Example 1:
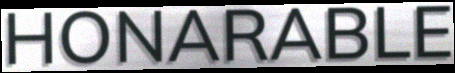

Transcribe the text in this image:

HONARABLE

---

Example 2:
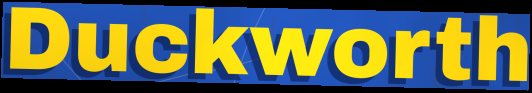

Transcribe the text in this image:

Duckworth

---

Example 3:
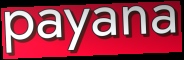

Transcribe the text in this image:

payana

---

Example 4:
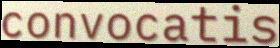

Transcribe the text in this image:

convocatis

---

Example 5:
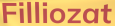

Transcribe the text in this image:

Filliozat